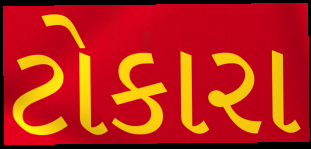
ટોકારા